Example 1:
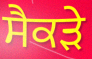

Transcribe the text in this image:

ਸੈਕੜੇ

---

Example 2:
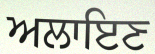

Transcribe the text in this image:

ਅਲਾਇਣ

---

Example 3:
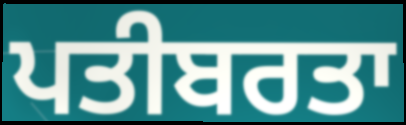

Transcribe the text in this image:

ਪਤੀਬਰਤਾ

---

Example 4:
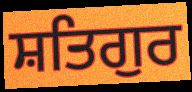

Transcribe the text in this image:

ਸ਼ਤਿਗੁਰ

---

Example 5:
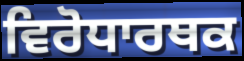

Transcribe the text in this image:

ਵਿਰੋਧਾਰਥਕ